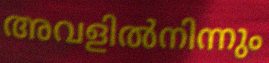
അവളിൽനിന്നും